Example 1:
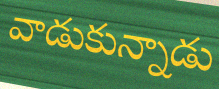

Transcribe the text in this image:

వాడుకున్నాడు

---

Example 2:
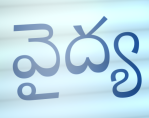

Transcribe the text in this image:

వైద్య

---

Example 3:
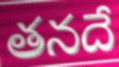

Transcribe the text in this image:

తనదే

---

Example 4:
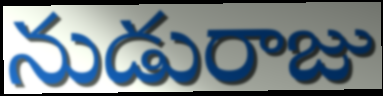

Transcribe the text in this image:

నుడురాజు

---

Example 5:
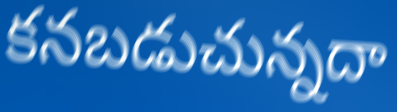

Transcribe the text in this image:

కనబడుచున్నదా